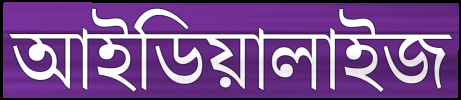
আইডিয়ালাইজ